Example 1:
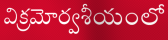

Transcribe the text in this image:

విక్రమోర్వశీయంలో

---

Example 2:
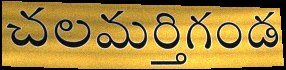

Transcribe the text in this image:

చలమర్తిగండ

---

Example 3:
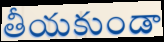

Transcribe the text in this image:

తీయకుండా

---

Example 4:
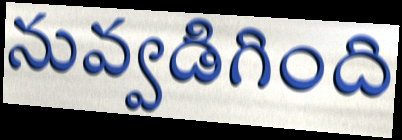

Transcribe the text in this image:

నువ్వడిగింది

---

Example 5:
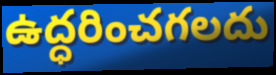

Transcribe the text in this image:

ఉద్ధరించగలదు